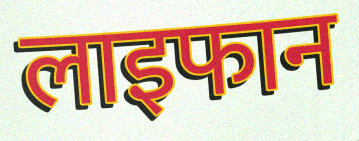
लाइफान